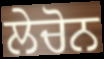
ਲੇਚੋਨ